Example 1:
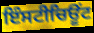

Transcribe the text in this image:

ਇੰਸਟੀਚਿਊਂਟ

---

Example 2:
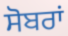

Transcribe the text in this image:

ਸੋਬਰਾਂ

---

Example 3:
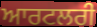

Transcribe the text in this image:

ਆਰਟਲਰੀ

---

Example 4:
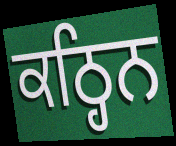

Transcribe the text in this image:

ਕਠ੍ਹਿਨ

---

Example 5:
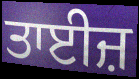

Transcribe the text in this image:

ਤਾਈਜ਼